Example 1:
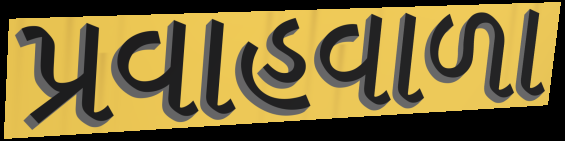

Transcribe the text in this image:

પ્રવાહવાળા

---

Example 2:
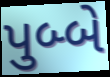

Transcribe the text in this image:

પુબ્બે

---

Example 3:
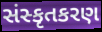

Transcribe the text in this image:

સંસ્કૃતકરણ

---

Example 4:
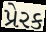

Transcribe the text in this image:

પ્રેરક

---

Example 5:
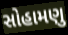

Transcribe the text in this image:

સોહામણુ